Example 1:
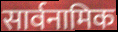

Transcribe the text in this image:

सार्वनामिक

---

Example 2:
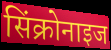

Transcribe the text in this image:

सिंक्रोनाइज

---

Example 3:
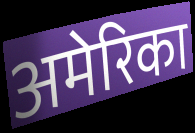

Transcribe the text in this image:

अमेरिका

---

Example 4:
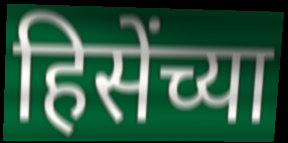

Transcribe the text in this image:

हिसेंच्या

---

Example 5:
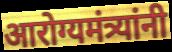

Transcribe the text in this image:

आरोग्यमंत्र्यांनी